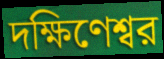
দক্ষিণেশ্বর